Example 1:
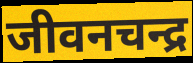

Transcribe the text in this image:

जीवनचन्द्र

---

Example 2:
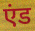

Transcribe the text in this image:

एंड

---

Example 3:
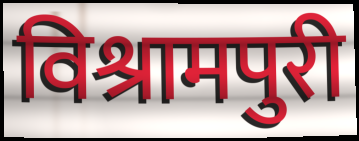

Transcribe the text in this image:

विश्रामपुरी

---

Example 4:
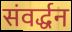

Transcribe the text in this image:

संवर्द्धन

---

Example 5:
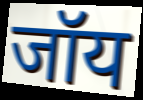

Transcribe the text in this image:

जॉय